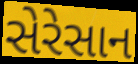
સેરેસાન